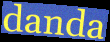
danda